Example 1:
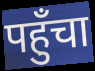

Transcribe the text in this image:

पहुँचा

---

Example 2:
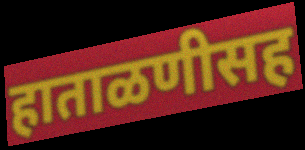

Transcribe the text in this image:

हाताळणीसह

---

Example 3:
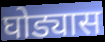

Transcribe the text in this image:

घोड्यास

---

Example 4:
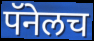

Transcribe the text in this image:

पॅनेलच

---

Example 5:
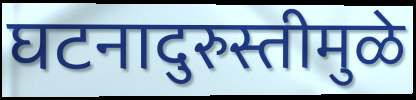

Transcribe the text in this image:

घटनादुरुस्तीमुळे